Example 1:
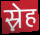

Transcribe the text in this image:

स्नेह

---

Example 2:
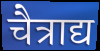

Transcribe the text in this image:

चैत्राद्य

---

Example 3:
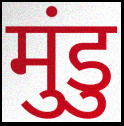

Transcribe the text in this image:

मुंडु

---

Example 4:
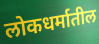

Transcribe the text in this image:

लोकधर्मातील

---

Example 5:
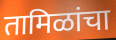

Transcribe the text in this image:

तामिळांचा